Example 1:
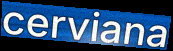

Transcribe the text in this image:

cerviana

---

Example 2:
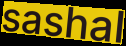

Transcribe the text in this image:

sashal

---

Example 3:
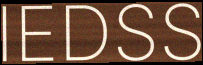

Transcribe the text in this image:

IEDSS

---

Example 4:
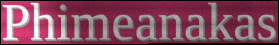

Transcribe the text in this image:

Phimeanakas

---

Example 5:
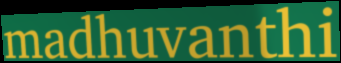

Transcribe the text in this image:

madhuvanthi